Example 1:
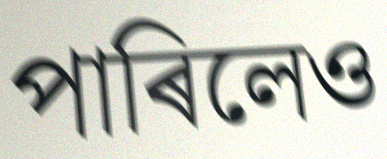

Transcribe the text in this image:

পাৰিলেও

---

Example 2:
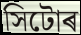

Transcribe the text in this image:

সিটোৰ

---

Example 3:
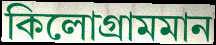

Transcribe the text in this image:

কিলোগ্ৰামমান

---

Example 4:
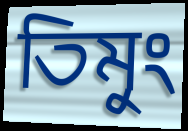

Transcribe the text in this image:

তিমুং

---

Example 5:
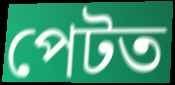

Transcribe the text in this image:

পেটত